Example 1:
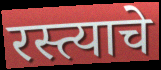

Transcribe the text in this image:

रस्त्याचे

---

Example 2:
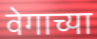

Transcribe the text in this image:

वेगाच्या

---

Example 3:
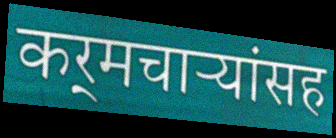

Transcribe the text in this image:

कर्मचाऱ्यांसह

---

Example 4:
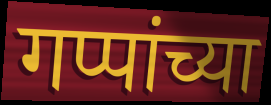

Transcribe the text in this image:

गप्पांच्या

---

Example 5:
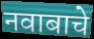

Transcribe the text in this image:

नवाबाचे